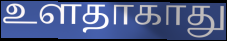
உளதாகாது